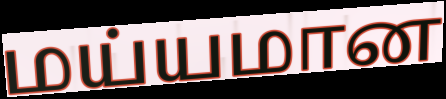
மய்யமான